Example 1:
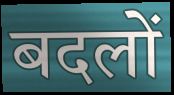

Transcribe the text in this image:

बदलों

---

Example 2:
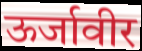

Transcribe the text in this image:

ऊर्जावीर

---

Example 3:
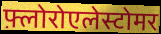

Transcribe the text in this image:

फ़्लोरोएलेस्टोमर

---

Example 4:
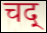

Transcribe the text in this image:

चद्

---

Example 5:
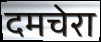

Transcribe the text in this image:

दमचेरा